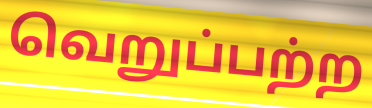
வெறுப்பற்ற